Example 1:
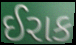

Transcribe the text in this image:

ઈરાક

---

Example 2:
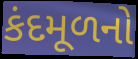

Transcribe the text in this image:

કંદમૂળનો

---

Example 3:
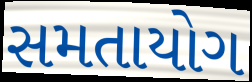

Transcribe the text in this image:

સમતાયોગ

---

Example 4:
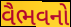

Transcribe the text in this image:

વૈભવનો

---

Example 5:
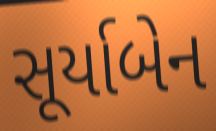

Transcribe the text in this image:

સૂર્યાબેન